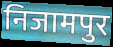
निजामपुर